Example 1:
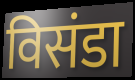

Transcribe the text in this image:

विसंडा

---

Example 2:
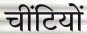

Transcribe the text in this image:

चींटियों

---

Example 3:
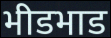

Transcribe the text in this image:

भीडभाड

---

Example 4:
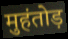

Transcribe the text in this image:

मुहंतोड़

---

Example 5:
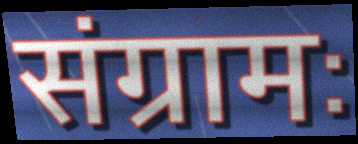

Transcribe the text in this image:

संग्रामः